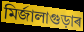
মিৰ্জালাগুড়াৰ